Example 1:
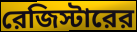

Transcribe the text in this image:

রেজিস্টারের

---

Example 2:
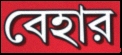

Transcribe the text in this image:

বেহার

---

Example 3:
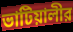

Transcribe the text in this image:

ভাটিয়ালীর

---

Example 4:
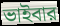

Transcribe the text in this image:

ভাইবার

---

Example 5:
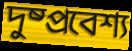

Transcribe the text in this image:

দুষ্প্রবেশ্য